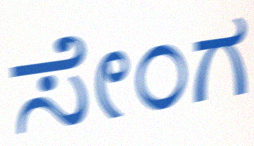
ಸೇಂಗ